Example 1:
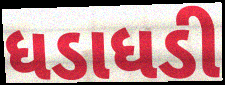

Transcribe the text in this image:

ધડાધડી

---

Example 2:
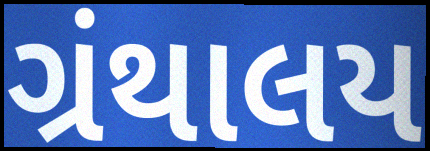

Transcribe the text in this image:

ગ્રંથાલય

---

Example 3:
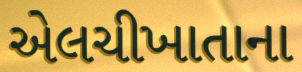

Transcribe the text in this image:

એલચીખાતાના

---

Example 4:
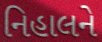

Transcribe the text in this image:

નિહાલને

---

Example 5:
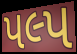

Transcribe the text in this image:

પલ્પ